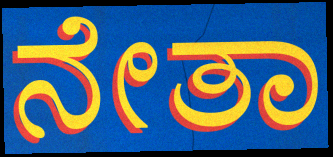
ನೇತಾ